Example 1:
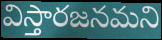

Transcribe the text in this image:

విస్తారజనమని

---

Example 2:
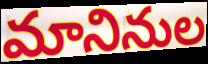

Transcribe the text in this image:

మానినుల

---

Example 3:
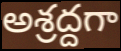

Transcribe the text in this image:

అశ్రద్దగా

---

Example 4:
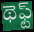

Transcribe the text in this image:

థెఫ్ట్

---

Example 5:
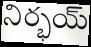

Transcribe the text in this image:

నిర్భయ్